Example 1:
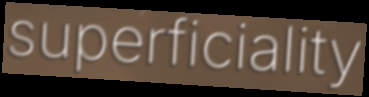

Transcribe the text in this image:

superficiality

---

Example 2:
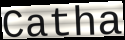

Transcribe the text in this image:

Catha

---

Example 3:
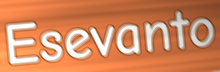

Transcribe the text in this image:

Esevanto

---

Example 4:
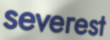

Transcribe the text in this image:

severest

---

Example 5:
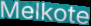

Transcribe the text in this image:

Melkote